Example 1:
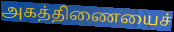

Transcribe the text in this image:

அகத்திணையைச்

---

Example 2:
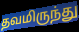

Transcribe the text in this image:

தவமிருந்து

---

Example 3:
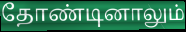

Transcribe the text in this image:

தோண்டினாலும்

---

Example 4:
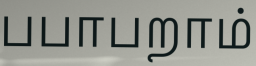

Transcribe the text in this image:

பபாபறாம்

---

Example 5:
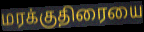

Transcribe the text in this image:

மரக்குதிரையை